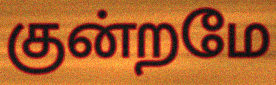
குன்றமே